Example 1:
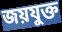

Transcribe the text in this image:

জয়যুক্ত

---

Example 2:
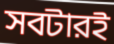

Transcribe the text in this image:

সবটারই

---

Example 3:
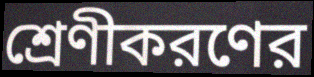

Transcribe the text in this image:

শ্রেণীকরণের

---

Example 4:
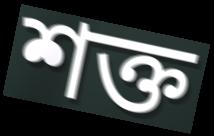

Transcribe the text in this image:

শক্ত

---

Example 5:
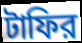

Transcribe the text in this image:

টাফির